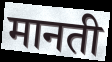
मानती